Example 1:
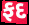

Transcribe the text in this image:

ફદ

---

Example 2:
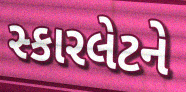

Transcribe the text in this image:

સ્કારલેટને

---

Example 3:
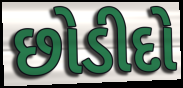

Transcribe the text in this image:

છોડીદો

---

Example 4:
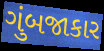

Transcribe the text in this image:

ગુંબજાકાર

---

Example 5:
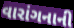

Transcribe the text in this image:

વારાંગનાની